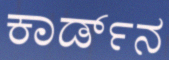
ಕಾರ್ಡ್‌ನ